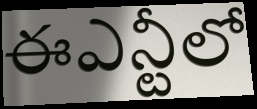
ఈఎన్టీలో